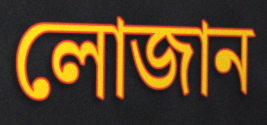
লোজান